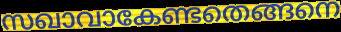
സഖാവാകേണ്ടതെങ്ങനെ